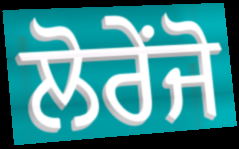
ਲੋਰੇਂਜੋ